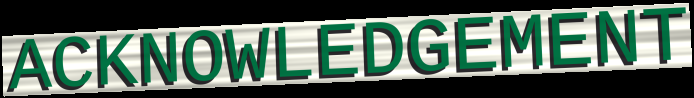
ACKNOWLEDGEMENT